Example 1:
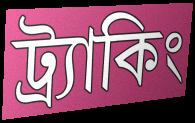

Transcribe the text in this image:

ট্র্যাকিং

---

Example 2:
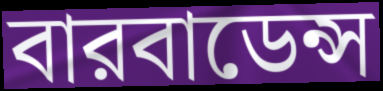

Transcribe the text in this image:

বারবাডেন্স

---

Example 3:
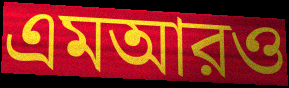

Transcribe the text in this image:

এমআরও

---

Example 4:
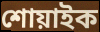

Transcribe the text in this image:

শোয়াইক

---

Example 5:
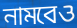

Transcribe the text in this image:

নামবেও